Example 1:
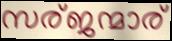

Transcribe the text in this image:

സര്ജന്മാര്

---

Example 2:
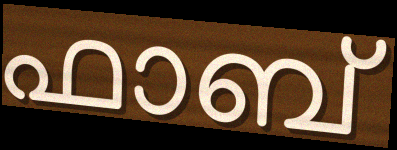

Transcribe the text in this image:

ഫാബ്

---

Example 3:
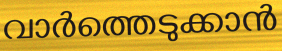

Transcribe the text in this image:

വാർത്തെടുക്കാൻ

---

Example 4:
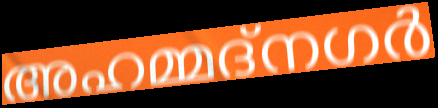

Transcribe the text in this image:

അഹമ്മദ്നഗർ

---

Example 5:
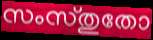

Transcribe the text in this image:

സംസ്തുതോ